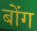
बोंग